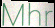
Mhr